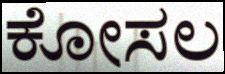
ಕೋಸಲ